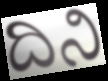
ದಿನಿ